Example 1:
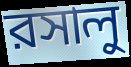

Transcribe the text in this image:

রসালু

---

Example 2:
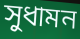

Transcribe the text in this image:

সুধামন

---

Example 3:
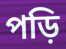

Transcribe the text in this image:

পড়ি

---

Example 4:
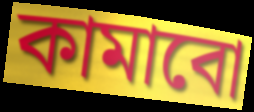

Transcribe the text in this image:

কামাবো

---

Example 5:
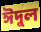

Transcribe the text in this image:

ঈদুল